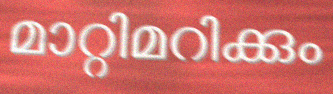
മാറ്റിമറിക്കും